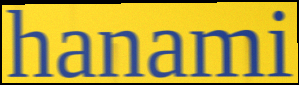
hanami